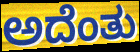
ಅದೆಂತು